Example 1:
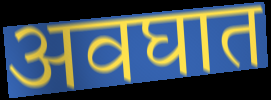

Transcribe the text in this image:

अवघात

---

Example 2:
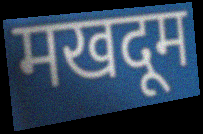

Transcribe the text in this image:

मखदूम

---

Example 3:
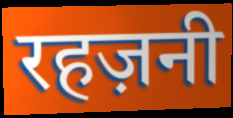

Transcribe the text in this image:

रहज़नी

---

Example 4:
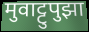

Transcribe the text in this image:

मुवाट्टुपुझा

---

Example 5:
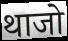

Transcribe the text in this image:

थाजो